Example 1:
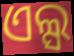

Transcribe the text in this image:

ଏଲ୍ସ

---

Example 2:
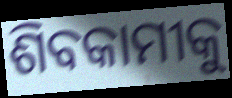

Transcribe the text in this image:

ଶିବକାମୀକୁ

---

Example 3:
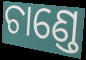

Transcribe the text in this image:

ଚାଣ୍ଡେ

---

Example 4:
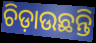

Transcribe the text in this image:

ଚିଡ଼ାଉଛନ୍ତି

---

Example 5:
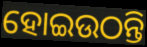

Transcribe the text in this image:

ହୋଇଉଠନ୍ତି